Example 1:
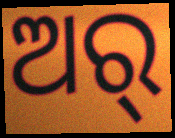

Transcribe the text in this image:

ଅର୍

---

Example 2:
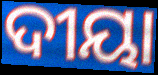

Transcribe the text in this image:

ଦୀୟା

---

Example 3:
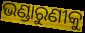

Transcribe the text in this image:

ଭଣ୍ଡାରୁଣୀକୁ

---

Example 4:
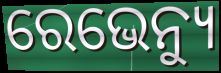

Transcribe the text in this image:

ରେଭେନ୍ୟୁ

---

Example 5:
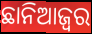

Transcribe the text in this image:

ଛାନିଆଜ୍ୱର